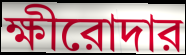
ক্ষীরোদার